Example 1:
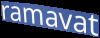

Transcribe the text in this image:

ramavat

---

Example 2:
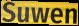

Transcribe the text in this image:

Suwen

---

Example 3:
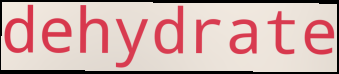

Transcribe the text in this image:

dehydrate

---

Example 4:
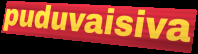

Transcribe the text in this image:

puduvaisiva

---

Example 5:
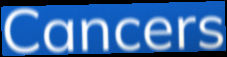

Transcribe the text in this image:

Cancers